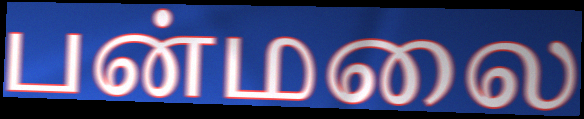
பன்மலை